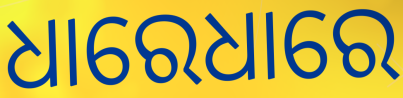
ଧାରେଧାରେ